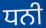
ਧਨੀ